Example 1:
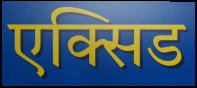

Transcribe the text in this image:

एक्सिड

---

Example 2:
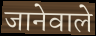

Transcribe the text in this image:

जानेवाले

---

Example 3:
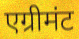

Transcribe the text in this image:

एग्रीमंट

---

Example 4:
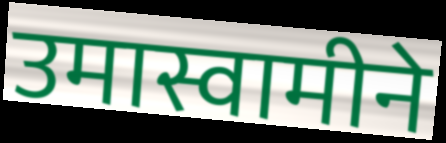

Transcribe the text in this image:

उमास्वामीने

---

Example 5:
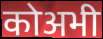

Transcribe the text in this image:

कोअभी